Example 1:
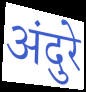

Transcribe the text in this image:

अंदुरे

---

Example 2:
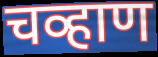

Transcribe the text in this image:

चव्हाण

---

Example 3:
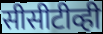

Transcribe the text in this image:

सीसीटीव्ही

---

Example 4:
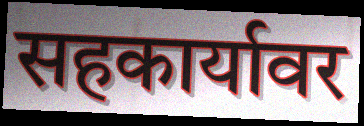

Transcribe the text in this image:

सहकार्यावर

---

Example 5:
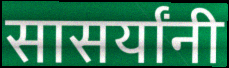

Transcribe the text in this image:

सासर्यांनी